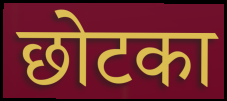
छोटका